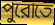
পুরোতে